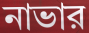
নাভার